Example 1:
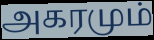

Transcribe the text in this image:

அகரமும்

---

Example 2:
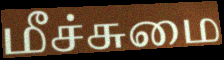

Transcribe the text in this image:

மீச்சுமை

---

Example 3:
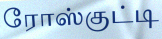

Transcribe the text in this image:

ரோஸ்குட்டி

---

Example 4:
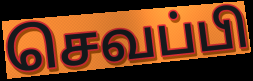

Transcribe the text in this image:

செவப்பி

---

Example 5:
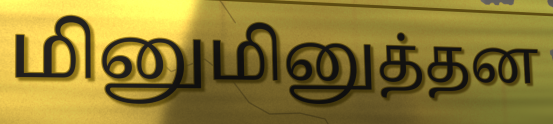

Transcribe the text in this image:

மினுமினுத்தன